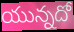
యున్నదో